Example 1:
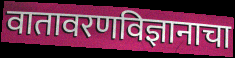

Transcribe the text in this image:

वातावरणविज्ञानाचा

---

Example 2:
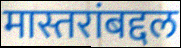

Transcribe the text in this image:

मास्तरांबद्दल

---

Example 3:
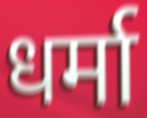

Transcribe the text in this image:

धर्मा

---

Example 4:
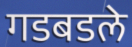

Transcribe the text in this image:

गडबडले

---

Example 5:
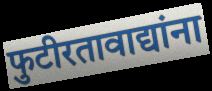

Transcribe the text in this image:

फुटीरतावाद्यांना